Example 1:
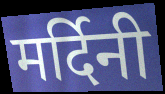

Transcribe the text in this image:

मर्दिनी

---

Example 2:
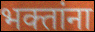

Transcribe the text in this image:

भक्तांना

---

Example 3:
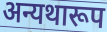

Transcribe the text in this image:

अन्यथारूप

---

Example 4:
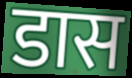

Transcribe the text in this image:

डास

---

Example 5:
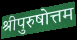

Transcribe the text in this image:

श्रीपुरुषोत्तम